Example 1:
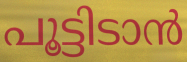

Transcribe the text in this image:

പൂട്ടിടാൻ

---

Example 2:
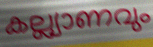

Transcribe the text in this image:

കല്ല്യാണവും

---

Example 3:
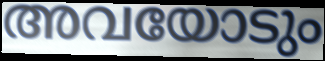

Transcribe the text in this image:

അവയോടും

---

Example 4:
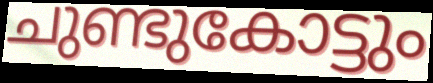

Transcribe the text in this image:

ചുണ്ടുകോട്ടും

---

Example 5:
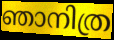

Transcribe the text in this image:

ഞാനിത്ര